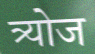
त्र्योज